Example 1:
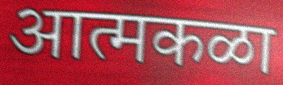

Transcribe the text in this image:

आत्मकळा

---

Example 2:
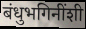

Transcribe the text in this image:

बंधुभगिनींशी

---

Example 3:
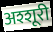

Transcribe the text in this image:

अश्‍शूरी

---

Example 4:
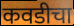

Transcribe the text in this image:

कवडीचा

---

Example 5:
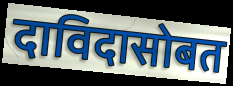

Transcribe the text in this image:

दाविदासोबत